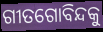
ଗୀତଗୋବିନ୍ଦକୁ